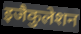
इजैकुलेशन